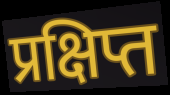
प्रक्षिप्त